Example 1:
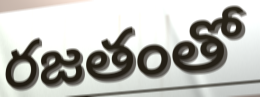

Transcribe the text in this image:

రజతంతో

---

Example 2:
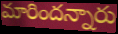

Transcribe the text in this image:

మారిందన్నారు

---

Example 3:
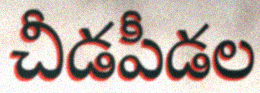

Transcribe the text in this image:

చీడపీడల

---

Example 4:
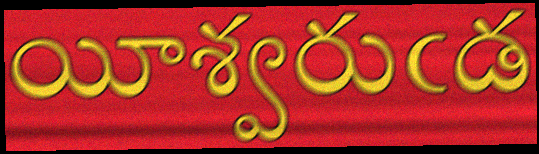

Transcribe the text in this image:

యీశ్వరుఁడ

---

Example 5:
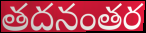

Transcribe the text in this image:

తదనంతర